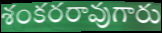
శంకరరావుగారు